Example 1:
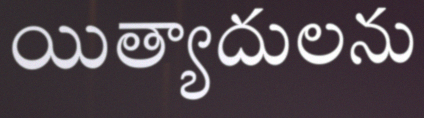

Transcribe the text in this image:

యిత్యాదులను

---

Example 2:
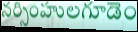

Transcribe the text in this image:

నర్సింహులగూడెం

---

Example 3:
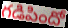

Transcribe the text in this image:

గడిపిందో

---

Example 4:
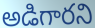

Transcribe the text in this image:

అడిగారని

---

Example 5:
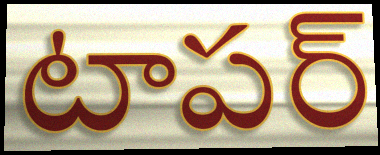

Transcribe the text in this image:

టాపర్